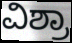
ವಿಶ್ರಾ